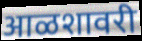
आळशावरी